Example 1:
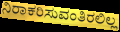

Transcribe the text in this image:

ನಿರಾಕರಿಸುವಂತಿರಲಿಲ್ಲ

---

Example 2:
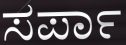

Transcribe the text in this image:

ಸರ್ಪಾ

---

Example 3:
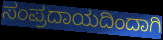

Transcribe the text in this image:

ಸಂಪ್ರದಾಯದಿಂದಾಗಿ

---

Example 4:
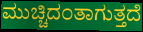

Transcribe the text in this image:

ಮುಚ್ಚಿದಂತಾಗುತ್ತದೆ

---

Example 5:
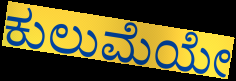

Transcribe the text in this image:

ಕುಲುಮೆಯೇ